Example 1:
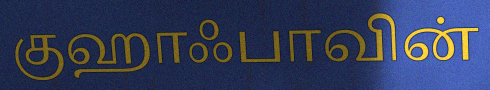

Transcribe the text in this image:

குஹாஃபாவின்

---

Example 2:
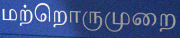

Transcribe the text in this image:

மற்றொருமுறை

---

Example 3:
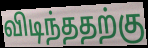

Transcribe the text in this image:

விடிந்ததற்கு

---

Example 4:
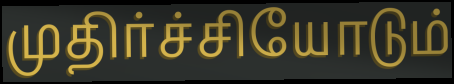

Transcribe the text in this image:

முதிர்ச்சியோடும்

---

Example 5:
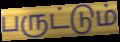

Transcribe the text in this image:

பருட்டும்